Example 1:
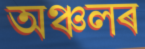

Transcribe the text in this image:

অঞ্চলৰ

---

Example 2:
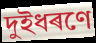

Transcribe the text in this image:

দুইধৰণে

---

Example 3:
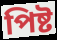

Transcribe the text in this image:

পিষ্ট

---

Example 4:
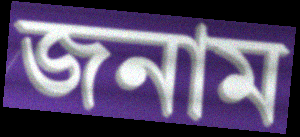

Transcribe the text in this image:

জনাম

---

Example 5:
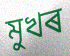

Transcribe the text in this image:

মুখৰ